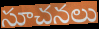
సూచనలు